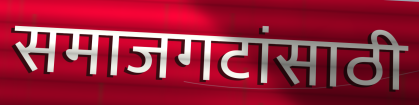
समाजगटांसाठी